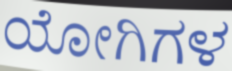
ಯೋಗಿಗಳ